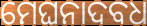
ମେଘନାଦବଧ